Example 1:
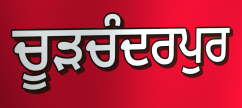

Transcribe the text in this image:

ਚੂੜਚੰਦਰਪੁਰ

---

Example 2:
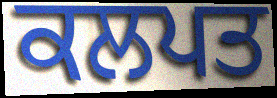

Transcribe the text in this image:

ਕਲਪਤ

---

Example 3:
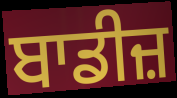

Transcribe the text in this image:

ਬਾਡੀਜ਼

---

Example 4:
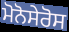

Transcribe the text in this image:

ਮੋਨੋਸੇਰੋਸ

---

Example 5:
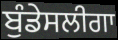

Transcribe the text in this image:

ਬੁੰਡੇਸਲੀਗਾ